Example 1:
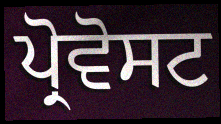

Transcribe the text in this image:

ਪ੍ਰੋਵੋਸਟ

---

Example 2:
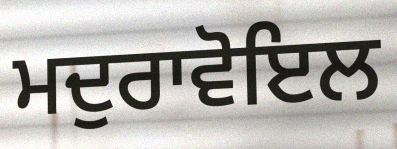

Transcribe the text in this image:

ਮਦੁਰਾਵੋਇਲ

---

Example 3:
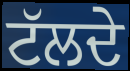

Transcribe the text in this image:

ਟੱਲਦੇ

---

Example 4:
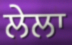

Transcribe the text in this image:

ਲੇਲਾ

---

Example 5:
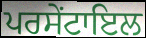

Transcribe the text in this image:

ਪਰਸੇਂਟਾਇਲ